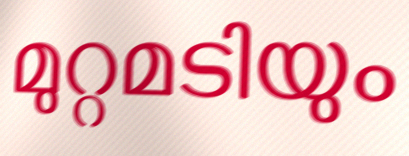
മുറ്റമടിയും